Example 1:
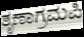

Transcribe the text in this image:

ತೃಣಾಗ್ರಮಪಿ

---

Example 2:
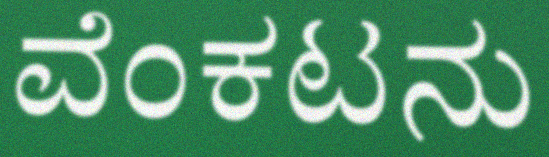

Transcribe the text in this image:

ವೆಂಕಟನು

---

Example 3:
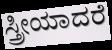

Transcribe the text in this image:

ಸ್ತ್ರೀಯಾದರೆ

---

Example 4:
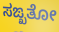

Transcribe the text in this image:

ಸಙ್ಖತೋ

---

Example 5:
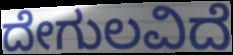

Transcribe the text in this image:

ದೇಗುಲವಿದೆ